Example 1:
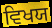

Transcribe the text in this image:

ਵਿਖਯ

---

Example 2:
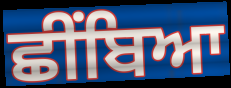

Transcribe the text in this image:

ਛੀਂਬਿਆ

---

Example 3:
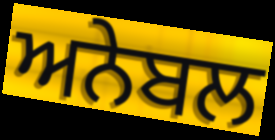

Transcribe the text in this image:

ਅਨੇਬਲ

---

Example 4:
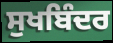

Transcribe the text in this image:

ਸੁਖਬਿੰਦਰ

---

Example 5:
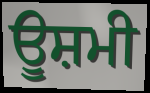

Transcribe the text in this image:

ਊਸ਼ਮੀ